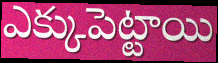
ఎక్కుపెట్టాయి